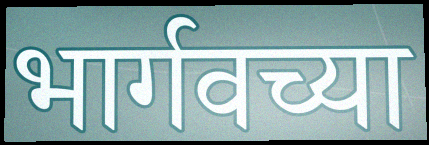
भार्गवच्या